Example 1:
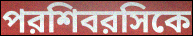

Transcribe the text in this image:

পরশিবরসিকে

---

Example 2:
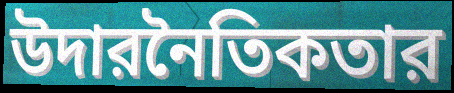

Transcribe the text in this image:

উদারনৈতিকতার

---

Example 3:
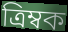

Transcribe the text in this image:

ত্রিম্বক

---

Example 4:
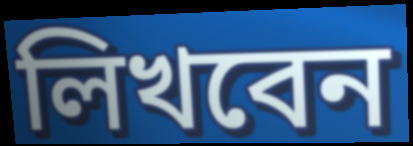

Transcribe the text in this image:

লিখবেন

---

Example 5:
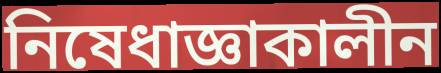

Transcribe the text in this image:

নিষেধাজ্ঞাকালীন